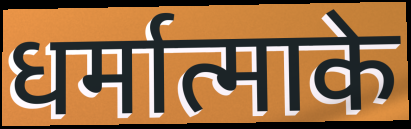
धर्मात्माके